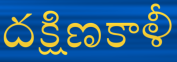
దక్షిణకాళీ